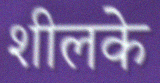
शीलके